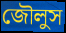
জৌলুস